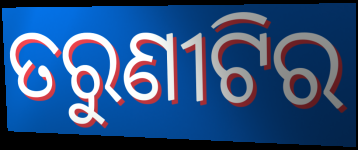
ତରୁଣୀଟିର